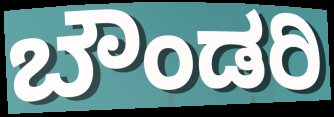
ಬೌಂಡರಿ